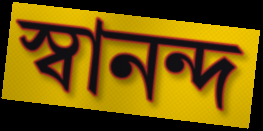
স্বানন্দ